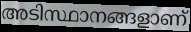
അടിസ്ഥാനങ്ങളാണ്